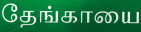
தேங்காயை